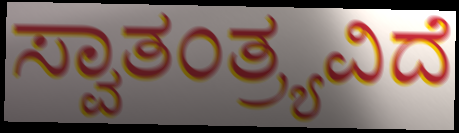
ಸ್ವಾತಂತ್ರ್ಯವಿದೆ